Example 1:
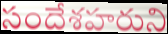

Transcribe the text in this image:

సందేశహరుని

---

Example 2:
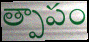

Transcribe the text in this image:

త్పాపం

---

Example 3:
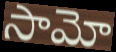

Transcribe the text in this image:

సామో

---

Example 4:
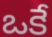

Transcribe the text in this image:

ఒకే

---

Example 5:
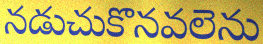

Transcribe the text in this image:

నడుచుకొనవలెను